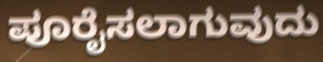
ಪೂರೈಸಲಾಗುವುದು